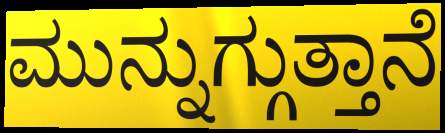
ಮುನ್ನುಗ್ಗುತ್ತಾನೆ